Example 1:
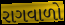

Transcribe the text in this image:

રાગવાળો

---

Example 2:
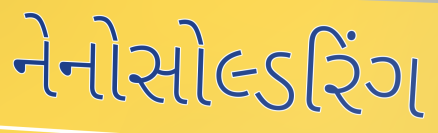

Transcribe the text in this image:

નેનોસોલ્ડરિંગ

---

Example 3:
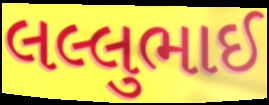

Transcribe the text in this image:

લલ્લુભાઈ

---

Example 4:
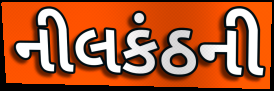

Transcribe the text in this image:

નીલકંઠની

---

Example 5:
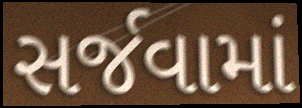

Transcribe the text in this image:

સર્જવામાં